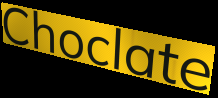
Choclate